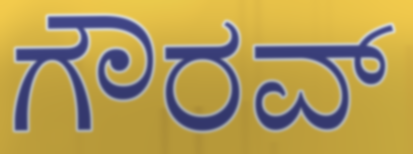
ಗೌರವ್